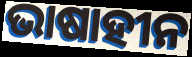
ଭାଷାହୀନ